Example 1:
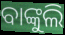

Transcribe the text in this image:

ବାଙ୍କୁଲି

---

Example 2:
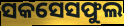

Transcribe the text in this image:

ସକସେସଫୁଲ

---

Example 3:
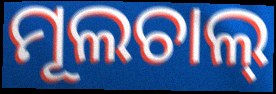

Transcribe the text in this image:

ମୂଲଚାଲ୍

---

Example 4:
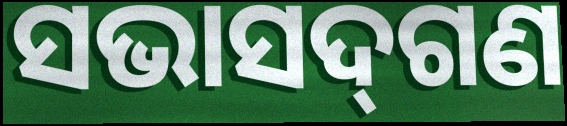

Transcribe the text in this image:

ସଭାସଦ୍‍ଗଣ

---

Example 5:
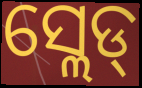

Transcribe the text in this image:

ସ୍ଲେଡ୍